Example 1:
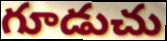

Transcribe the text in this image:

గూడుచు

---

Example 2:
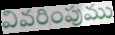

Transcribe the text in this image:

వివరింపుము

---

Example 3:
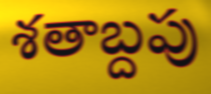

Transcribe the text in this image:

శతాబ్దపు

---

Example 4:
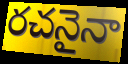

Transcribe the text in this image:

రచనైనా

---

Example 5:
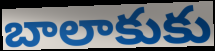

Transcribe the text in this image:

బాలాకుకు